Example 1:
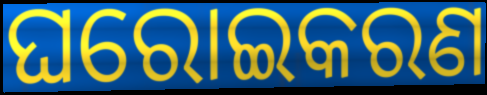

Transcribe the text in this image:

ଘରୋଇକରଣ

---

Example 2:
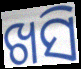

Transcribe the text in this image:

ଖସି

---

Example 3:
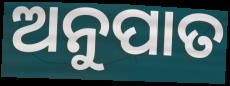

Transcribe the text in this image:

ଅନୁପାତ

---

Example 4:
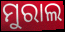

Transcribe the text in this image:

ମୁରାଲ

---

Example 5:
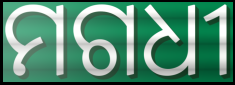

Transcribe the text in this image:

ମଗଧୀ